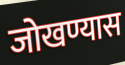
जोखण्यास